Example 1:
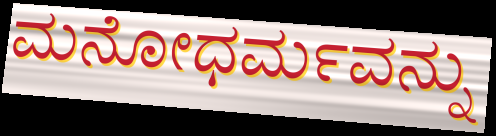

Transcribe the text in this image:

ಮನೋಧರ್ಮವನ್ನು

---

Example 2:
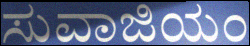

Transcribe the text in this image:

ಸುವಾಜಿಯಂ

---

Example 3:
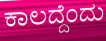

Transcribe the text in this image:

ಕಾಲದ್ದೆಂದು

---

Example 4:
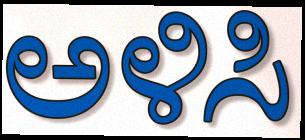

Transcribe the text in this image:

ಅಳಿಸಿ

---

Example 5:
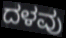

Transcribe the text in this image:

ದಳವು